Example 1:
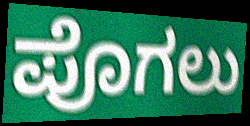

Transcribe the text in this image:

ಪೊಗಲು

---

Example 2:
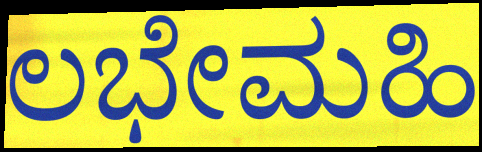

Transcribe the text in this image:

ಲಭೇಮಹಿ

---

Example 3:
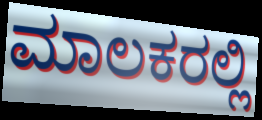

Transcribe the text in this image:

ಮಾಲಕರಲ್ಲಿ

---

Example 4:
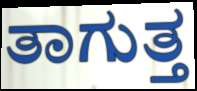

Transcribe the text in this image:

ತಾಗುತ್ತ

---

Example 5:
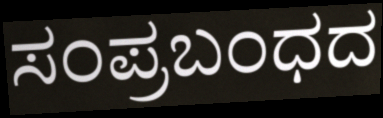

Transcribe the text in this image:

ಸಂಪ್ರಬಂಧದ